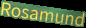
Rosamund